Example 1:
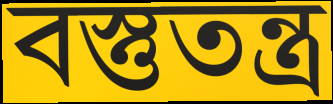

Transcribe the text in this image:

বস্তুতন্ত্র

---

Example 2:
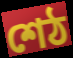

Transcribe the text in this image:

শেঠ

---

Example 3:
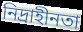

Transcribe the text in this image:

নিদ্রাহীনতা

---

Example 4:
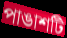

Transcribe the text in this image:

পাঙাশটি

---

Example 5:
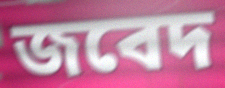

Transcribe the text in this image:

জবেদ